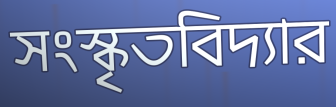
সংস্কৃতবিদ্যার